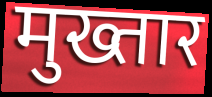
मुख्‍तार